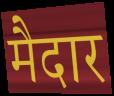
मैदार